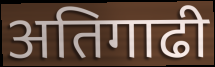
अतिगाढी